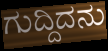
ಗುದ್ದಿದನು